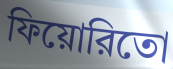
ফিয়োরিতো